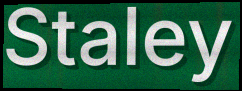
Staley